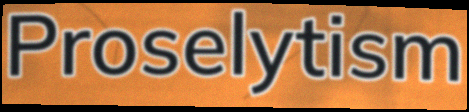
Proselytism